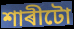
শাৰীটো